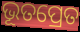
ଭୂତପ୍ରେତ